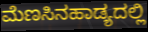
ಮೆಣಸಿನಹಾಡ್ಯದಲ್ಲಿ